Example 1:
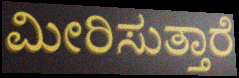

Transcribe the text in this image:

ಮೀರಿಸುತ್ತಾರೆ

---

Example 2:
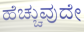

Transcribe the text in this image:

ಹೆಚ್ಚುವುದೇ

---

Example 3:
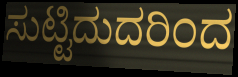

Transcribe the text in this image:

ಸುಟ್ಟಿದುದರಿಂದ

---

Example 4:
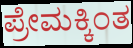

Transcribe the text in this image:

ಪ್ರೇಮಕ್ಕಿಂತ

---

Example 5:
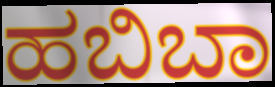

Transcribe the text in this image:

ಹಬಿಬಾ